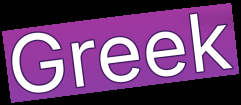
Greek